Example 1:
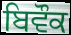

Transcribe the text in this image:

ਬਿਵੌਕ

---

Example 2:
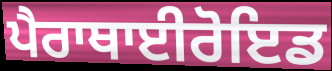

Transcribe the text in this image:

ਪੈਰਾਥਾਈਰੋਇਡ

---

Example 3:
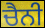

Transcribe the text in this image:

ਚੈਨੀ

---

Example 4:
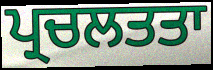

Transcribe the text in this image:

ਪ੍ਰਚਲਤਤਾ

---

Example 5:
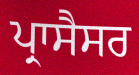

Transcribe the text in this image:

ਪ੍ਰਾਸੈਸਰ